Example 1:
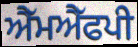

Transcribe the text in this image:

ਐੱਮਐੱਫਪੀ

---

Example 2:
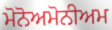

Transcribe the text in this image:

ਮੋਨੋਅਮੋਨੀਅਮ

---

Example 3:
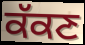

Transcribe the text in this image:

ਕੱਕਣ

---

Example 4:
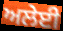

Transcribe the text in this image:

ਅਲੇਈ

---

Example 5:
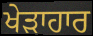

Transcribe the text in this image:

ਖੇੜਾਹਾਰ